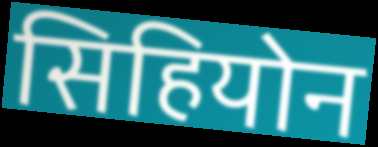
सिहियोन